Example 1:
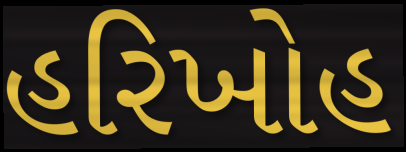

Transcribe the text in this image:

હરિખોહ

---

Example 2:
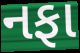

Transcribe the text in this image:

નફા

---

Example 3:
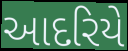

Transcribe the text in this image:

આદરિયે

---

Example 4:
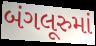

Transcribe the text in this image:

બંગલૂરુમાં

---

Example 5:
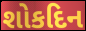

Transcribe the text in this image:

શોકદિન